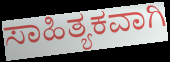
ಸಾಹಿತ್ಯಕವಾಗಿ